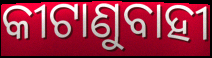
କୀଟାଣୁବାହୀ